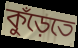
কুঁড়েতে